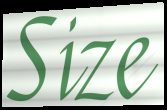
Size